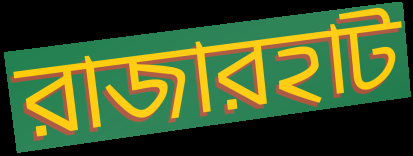
রাজারহাট